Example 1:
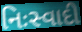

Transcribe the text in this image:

નિઃસ્વાદી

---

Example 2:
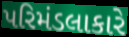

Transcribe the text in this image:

પરિમંડલાકારે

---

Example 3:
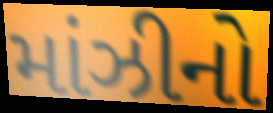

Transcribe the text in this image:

માંઝીનો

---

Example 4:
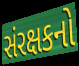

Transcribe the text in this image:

સંરક્ષકનો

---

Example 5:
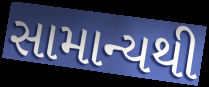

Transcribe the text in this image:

સામાન્યથી